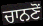
ਚਾਨਣੋਂ